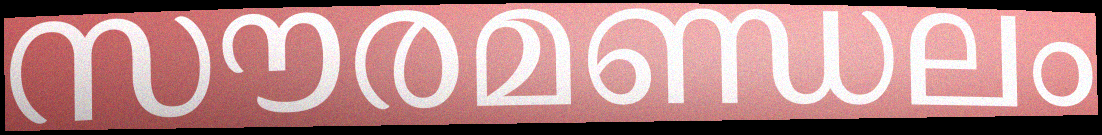
സൗരമണ്ഡലം